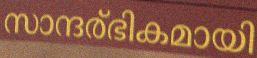
സാന്ദര്ഭികമായി